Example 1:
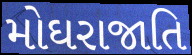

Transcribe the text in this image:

મોઘરાજાતિ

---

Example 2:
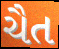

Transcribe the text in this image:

ચૈત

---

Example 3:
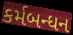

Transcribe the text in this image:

કર્મબન્ધન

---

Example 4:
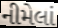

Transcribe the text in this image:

નીમેલાં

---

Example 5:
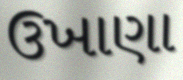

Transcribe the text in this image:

ઉખાણા